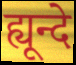
ह्यून्दे